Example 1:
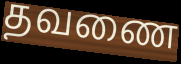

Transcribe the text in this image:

தவணை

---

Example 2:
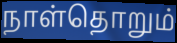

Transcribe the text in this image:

நாள்தொறும்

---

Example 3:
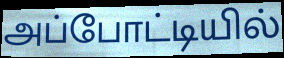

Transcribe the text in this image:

அப்போட்டியில்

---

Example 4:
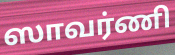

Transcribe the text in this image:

ஸாவர்ணி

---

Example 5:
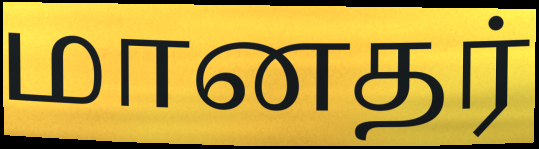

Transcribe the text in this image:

மானதர்